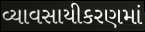
વ્યાવસાયીકરણમાં